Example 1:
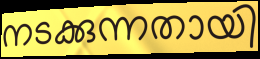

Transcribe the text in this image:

നടക്കുന്നതായി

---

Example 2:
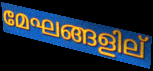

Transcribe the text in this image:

മേഘങ്ങളില്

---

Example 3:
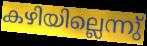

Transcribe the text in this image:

കഴിയില്ലെന്നു്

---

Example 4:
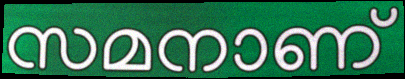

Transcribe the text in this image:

സമനാണ്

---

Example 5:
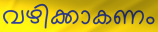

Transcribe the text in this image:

വഴിക്കാകണം